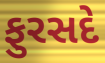
ફુરસદે